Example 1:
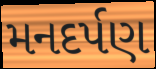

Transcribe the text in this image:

મનદર્પણ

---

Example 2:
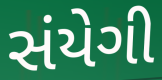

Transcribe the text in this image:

સંયેગી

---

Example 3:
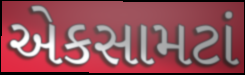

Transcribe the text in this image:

એકસામટાં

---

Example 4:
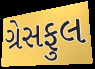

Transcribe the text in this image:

ગ્રેસફુલ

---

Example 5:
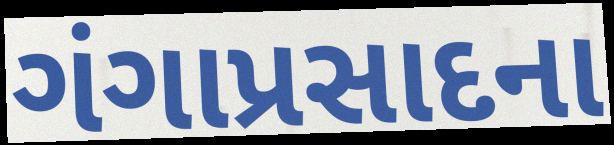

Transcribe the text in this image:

ગંગાપ્રસાદના